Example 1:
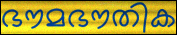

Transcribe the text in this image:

ഭൗമഭൗതിക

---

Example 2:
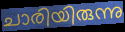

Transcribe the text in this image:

ചാരിയിരുന്നു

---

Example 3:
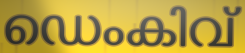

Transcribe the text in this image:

ഡെംകിവ്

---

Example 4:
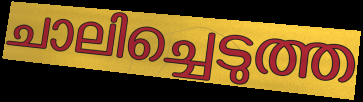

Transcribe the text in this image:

ചാലിച്ചെടുത്ത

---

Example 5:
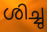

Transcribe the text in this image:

ശിച്ചു